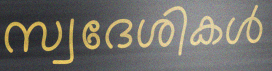
സ്വദേശികൾ